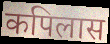
कपिलास